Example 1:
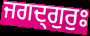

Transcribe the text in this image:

ਜਗਦ੍ਗੁਰੁਃ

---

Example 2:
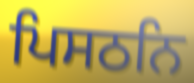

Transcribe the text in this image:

ਪਿਸਠਨਿ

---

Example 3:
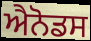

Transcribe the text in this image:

ਐਨੋਡਸ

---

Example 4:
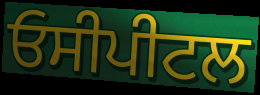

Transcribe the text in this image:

ਓਸੀਪੀਟਲ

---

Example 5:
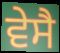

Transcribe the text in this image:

ਵੇਸੈ